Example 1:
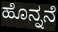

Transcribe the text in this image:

ಹೊನ್ನನೆ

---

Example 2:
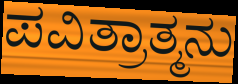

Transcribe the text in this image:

ಪವಿತ್ರಾತ್ಮನು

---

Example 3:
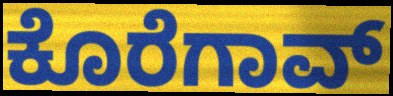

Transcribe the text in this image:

ಕೊರೆಗಾವ್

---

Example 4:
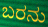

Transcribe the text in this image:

ಬರನು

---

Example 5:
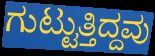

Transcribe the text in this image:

ಗುಟ್ಟುತ್ತಿದ್ದವು